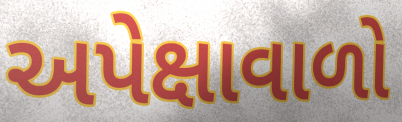
અપેક્ષાવાળો